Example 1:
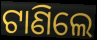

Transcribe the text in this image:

ଟାଣିଲେ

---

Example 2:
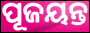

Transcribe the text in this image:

ପୂଜୟନ୍ତ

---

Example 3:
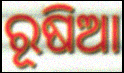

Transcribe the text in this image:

ରୂଷିଆ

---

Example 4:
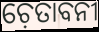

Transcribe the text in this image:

ଚ଼େତାବନୀ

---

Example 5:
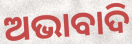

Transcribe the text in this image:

ଅଭାବାଦି